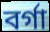
বর্গা